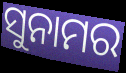
ସୁନାମର